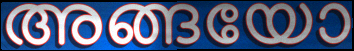
അങ്ങയോ